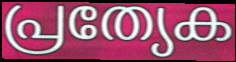
പ്രത്യേക